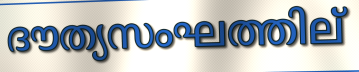
ദൗത്യസംഘത്തില്